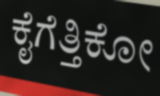
ಕೈಗೆತ್ತಿಕೋ